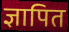
ज्ञापित